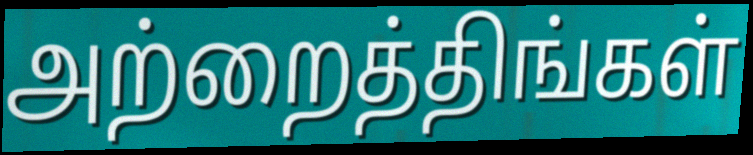
அற்றைத்திங்கள்